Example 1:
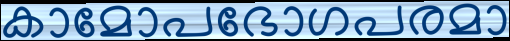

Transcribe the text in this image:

കാമോപഭോഗപരമാ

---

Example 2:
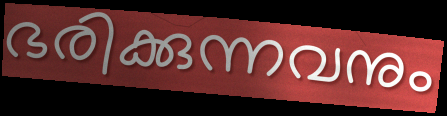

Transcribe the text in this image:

ഭരിക്കുന്നവനും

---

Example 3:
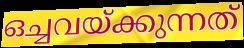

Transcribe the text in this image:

ഒച്ചവയ്ക്കുന്നത്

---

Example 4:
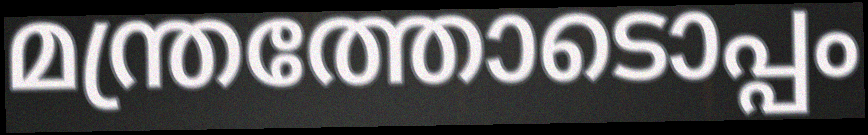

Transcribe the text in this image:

മന്ത്രത്തോടൊപ്പം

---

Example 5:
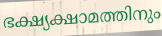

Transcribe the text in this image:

ഭക്ഷ്യക്ഷാമത്തിനും